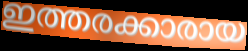
ഇത്തരക്കാരായ